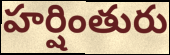
హర్షింతురు